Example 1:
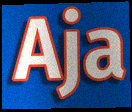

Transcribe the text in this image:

Aja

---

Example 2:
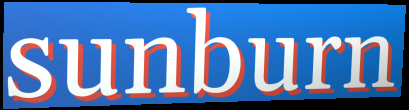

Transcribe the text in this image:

sunburn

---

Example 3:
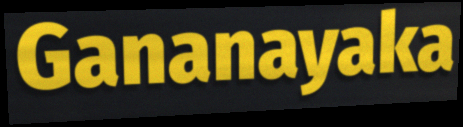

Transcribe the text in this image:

Gananayaka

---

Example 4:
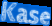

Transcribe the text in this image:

Kase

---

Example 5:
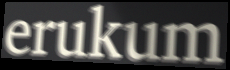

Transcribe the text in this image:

erukum